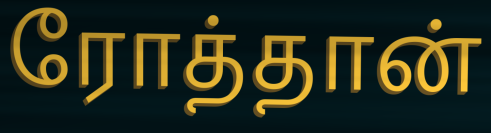
ரோத்தான்